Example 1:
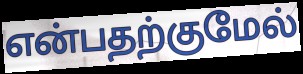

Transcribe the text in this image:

என்பதற்குமேல்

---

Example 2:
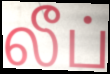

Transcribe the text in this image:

லீப்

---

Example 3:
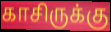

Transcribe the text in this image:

காசிருக்கு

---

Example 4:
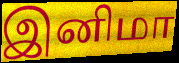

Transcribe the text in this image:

இனிமா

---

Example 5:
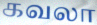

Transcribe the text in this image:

கவலா